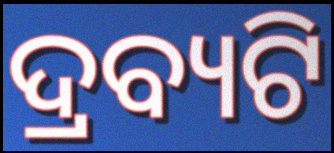
ଦ୍ରବ୍ୟଟି